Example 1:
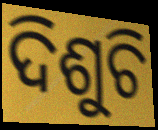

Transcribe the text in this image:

ଦିଶୁଚି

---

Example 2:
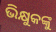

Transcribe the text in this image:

ଭିକ୍ଷୁକଙ୍କୁ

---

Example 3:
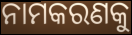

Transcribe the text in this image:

ନାମକରଣକୁ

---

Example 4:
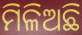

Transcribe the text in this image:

ମିଳିଅଛି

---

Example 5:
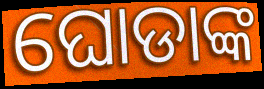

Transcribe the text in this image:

ଘୋଡାଙ୍କ